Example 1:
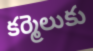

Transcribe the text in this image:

కర్మెలుకు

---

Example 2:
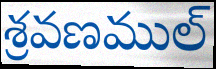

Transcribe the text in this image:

శ్రవణముల్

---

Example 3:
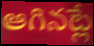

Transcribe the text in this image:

ఆగినట్లే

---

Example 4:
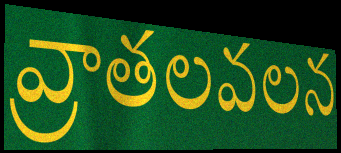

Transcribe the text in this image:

వ్రాతలవలన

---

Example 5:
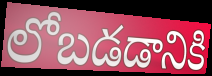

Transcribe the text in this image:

లోబడడానికి